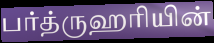
பர்த்ருஹரியின்